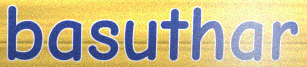
basuthar